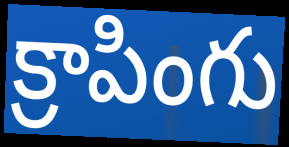
క్రాపింగు